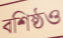
বশিষ্ঠও